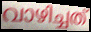
വാഴിച്ചത്